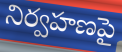
నిర్వహణపై